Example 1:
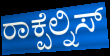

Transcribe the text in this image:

ರಾಕ್ಪೆಲ್ನಿಸ್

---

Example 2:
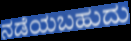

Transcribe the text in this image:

ನಡೆಯಬಹುದು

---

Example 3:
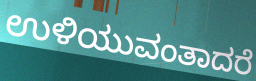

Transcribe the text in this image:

ಉಳಿಯುವಂತಾದರೆ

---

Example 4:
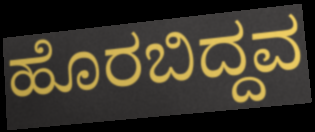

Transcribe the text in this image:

ಹೊರಬಿದ್ದವ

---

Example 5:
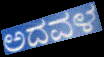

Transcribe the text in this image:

ಅದವಳ